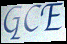
GCE